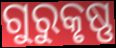
ଗୁରୁକୃଷ୍ଣ